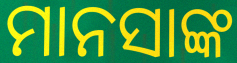
ମାନସାଙ୍କ